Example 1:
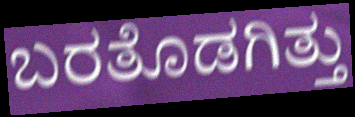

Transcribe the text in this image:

ಬರತೊಡಗಿತ್ತು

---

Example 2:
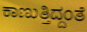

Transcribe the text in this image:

ಕಾಣುತ್ತಿದ್ದಂತೆ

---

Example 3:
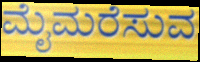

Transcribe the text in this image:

ಮೈಮರೆಸುವ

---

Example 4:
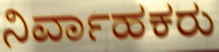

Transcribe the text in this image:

ನಿರ್ವಾಹಕರು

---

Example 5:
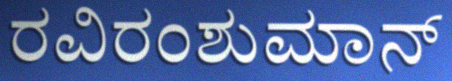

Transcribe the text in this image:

ರವಿರಂಶುಮಾನ್